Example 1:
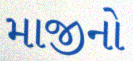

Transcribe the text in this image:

માજીનો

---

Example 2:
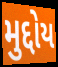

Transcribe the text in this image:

મુદ્દોય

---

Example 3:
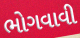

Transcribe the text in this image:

ભોગવાવી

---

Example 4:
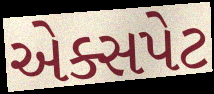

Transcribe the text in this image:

એક્સપેટ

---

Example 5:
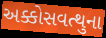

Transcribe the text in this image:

અક્કોસવત્થુના